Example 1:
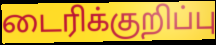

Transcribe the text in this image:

டைரிக்குறிப்பு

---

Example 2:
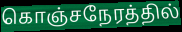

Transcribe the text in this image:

கொஞ்சநேரத்தில்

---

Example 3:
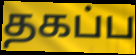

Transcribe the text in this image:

தகப்ப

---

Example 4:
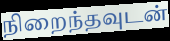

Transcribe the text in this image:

நிறைந்தவுடன்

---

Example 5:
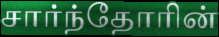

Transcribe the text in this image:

சார்ந்தோரின்